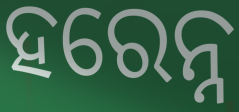
ହରେନ୍ନ